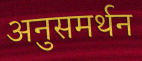
अनुसमर्थन